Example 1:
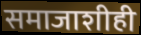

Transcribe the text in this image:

समाजाशीही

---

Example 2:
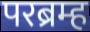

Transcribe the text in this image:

परब्रम्ह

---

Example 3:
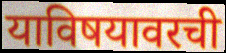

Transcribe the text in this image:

याविषयावरची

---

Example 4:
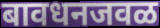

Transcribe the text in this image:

बावधनजवळ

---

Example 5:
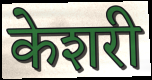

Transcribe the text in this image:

केशरी